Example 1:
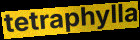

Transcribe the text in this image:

tetraphylla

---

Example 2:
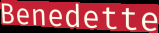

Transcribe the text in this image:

Benedette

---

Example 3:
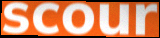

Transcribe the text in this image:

scour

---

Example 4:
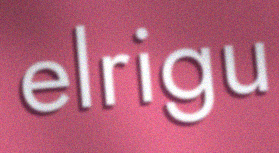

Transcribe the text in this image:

elrigu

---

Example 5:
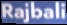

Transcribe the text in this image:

Rajbali